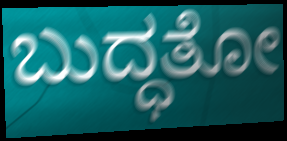
ಬುದ್ಧತೋ